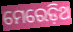
ମେରେଡ଼ିଥ